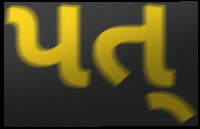
પત્